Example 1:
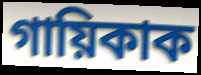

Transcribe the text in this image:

গায়িকাক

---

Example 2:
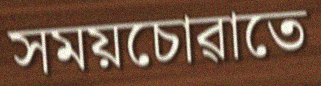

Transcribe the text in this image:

সময়চোৱাতে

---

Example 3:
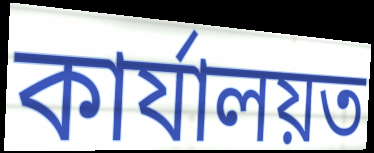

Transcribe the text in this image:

কাৰ্যালয়ত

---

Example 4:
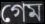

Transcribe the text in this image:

গেম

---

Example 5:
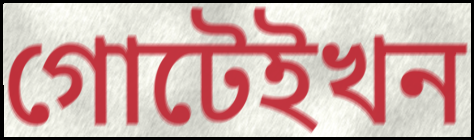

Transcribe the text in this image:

গোটেইখন